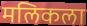
मलिकला